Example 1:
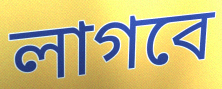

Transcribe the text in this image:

লাগবে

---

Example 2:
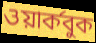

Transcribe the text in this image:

ওয়ার্কবুক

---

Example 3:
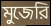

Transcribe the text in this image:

মুজেরি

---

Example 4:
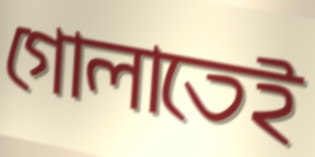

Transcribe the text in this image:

গোলাতেই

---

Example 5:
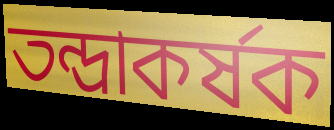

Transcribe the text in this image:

তন্দ্রাকর্ষক